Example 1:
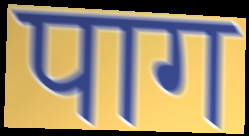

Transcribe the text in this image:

पाग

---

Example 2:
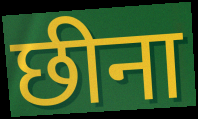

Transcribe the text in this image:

छीना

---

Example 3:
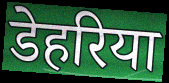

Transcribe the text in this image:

डेहरिया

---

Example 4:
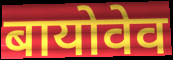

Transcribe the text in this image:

बायोवेव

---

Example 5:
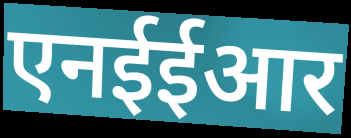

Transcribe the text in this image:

एनईईआर